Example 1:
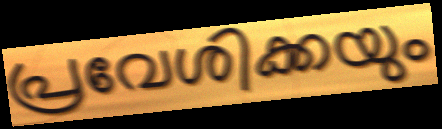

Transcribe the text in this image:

പ്രവേശിക്കയും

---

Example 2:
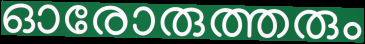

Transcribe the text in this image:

ഓരോരുത്തരും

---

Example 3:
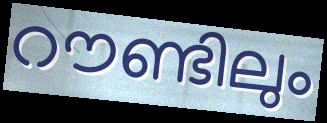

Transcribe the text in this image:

റൗണ്ടിലും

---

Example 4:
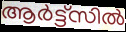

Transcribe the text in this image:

ആർട്ട്സിൽ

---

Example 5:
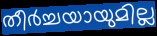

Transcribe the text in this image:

തീർച്ചയായുമില്ല